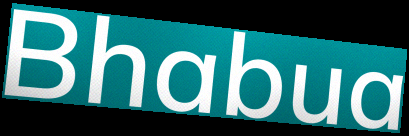
Bhabua